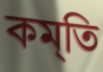
কম্‌তি